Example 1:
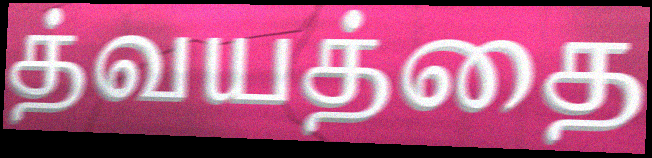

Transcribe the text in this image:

த்வயத்தை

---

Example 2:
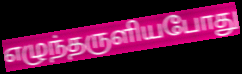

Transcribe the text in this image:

எழுந்தருளியபோது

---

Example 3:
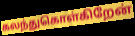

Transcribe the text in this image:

கலந்துகொள்கிறேன்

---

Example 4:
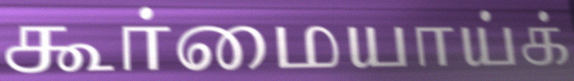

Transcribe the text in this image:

கூர்மையாய்க்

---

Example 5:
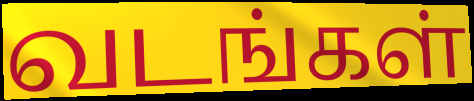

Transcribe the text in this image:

வடங்கள்